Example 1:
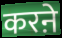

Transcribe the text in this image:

करऩे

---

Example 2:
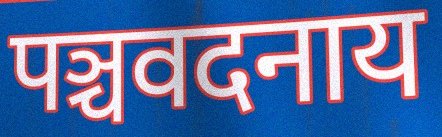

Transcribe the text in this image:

पञ्चवदनाय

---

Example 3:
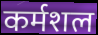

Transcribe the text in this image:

कर्मशल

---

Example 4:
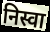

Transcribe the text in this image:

निस्वा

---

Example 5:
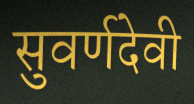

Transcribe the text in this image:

सुवर्णदेवी